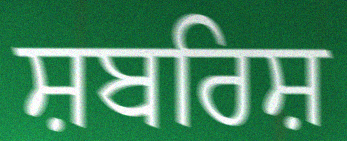
ਸ਼ਬਰਿਸ਼